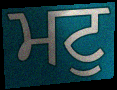
ਮਟੁ